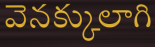
వెనక్కులాగి